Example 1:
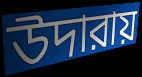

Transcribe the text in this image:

উদারায়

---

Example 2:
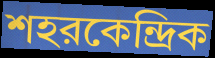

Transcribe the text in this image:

শহরকেন্দ্রিক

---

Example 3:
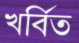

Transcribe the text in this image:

খর্বিত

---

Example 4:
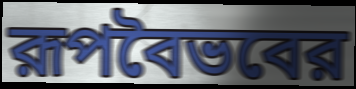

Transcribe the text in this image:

রূপবৈভবের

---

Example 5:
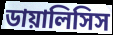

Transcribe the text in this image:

ডায়ালিসিস